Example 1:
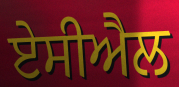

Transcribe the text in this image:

ਏਸੀਐਲ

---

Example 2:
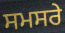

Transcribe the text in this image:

ਸਮਸਰੇ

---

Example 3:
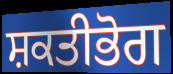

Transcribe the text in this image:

ਸ਼ਕਤੀਭੋਗ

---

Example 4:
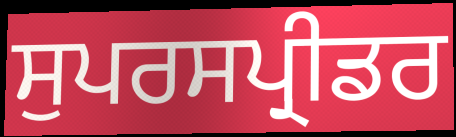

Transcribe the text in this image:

ਸੁਪਰਸਪ੍ਰੀਡਰ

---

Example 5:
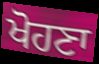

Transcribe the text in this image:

ਖੋਹਣਾ